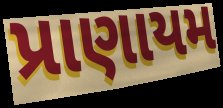
પ્રાણાયમ